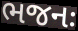
ભજનઃ